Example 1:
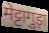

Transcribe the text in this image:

मेट्टागुड़ा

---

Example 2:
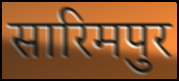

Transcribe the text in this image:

सारिमपुर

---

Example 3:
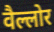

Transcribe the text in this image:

वैल्लोर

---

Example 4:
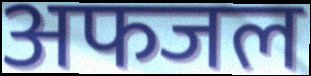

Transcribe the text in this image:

अफजल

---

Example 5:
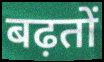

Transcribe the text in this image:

बढ़तों